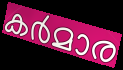
കർമാര